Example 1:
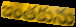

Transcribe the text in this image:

ఇంతకును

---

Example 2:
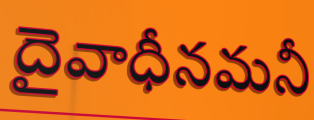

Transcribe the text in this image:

దైవాధీనమనీ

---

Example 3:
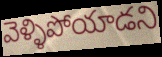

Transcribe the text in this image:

వెళ్ళిపోయాడని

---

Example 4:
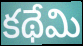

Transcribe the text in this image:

కథేమి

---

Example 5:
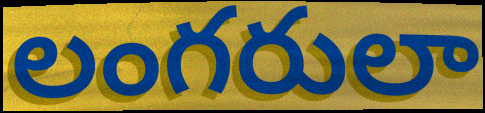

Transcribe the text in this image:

లంగరులా